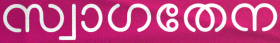
സ്വാഗതേന